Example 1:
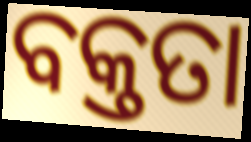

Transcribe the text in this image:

ବକ୍ତତା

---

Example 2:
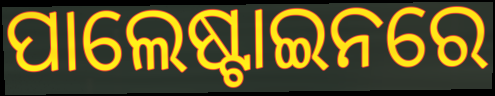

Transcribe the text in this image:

ପାଲେଷ୍ଟାଇନରେ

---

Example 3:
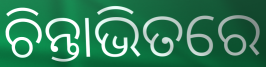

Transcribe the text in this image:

ଚିନ୍ତାଭିତରେ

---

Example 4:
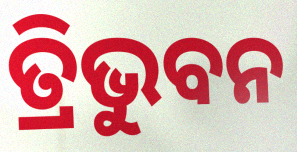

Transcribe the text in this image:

ତ୍ରିଭୁବନ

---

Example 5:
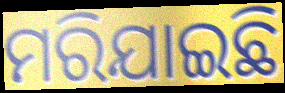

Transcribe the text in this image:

ମରିଯାଇଛି